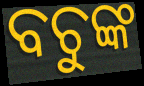
ବଚୁଙ୍କ